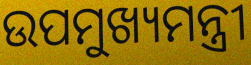
ଉପମୁଖ୍ୟମନ୍ତ୍ରୀ